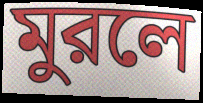
মুরলে